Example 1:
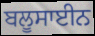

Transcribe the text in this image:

ਬਲੂਸਾਈਨ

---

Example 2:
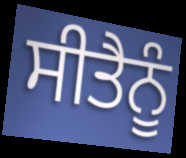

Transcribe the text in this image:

ਸੀਤੈਨੂੰ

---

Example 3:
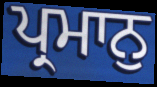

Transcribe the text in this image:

ਪ੍ਰਮਾਨੁ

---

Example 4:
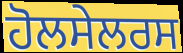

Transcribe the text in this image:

ਹੋਲਸੇਲਰਸ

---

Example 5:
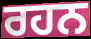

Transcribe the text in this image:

ਰਹਨ